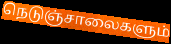
நெடுஞ்சாலைகளும்